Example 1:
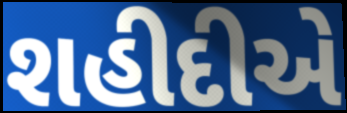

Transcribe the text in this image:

શહીદીએ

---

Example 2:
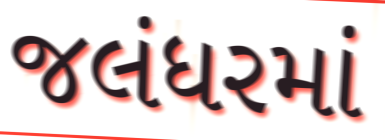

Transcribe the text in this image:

જલંધરમાં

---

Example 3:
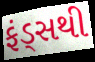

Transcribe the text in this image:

ફંડ્સથી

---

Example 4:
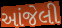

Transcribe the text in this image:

આંજેલી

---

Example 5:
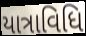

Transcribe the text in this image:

યાત્રાવિધિ